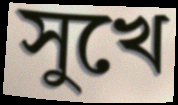
সুখে